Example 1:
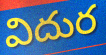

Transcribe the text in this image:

విదుర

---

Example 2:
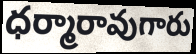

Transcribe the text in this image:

ధర్మారావుగారు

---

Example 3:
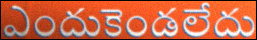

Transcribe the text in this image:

ఎందుకెండలేదు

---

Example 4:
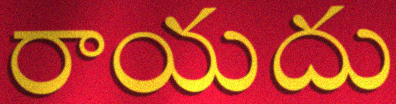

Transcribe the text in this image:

రాయదు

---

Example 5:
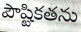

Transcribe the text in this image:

పౌష్టికతను